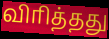
விரித்தது